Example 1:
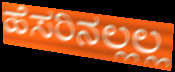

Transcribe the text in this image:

ಹೆಸರಿನಲ್ಲಲ್ಲ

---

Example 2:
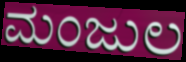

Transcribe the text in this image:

ಮಂಜುಲ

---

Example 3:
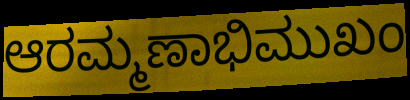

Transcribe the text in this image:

ಆರಮ್ಮಣಾಭಿಮುಖಂ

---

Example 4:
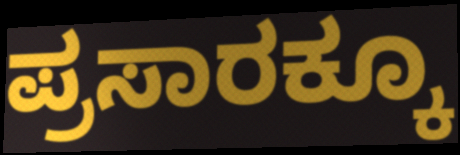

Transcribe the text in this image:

ಪ್ರಸಾರಕ್ಕೂ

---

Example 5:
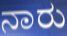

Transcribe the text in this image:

ನಾರು